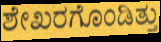
ಶೇಖರಗೊಂಡಿತ್ತು